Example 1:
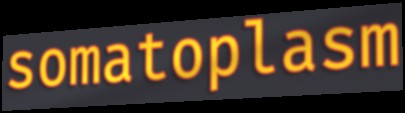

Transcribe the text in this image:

somatoplasm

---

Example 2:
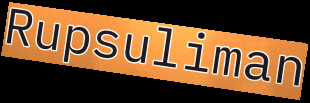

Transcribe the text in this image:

Rupsuliman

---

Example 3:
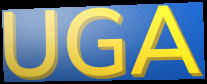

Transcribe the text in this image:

UGA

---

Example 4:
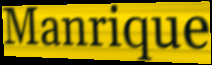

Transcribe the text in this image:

Manrique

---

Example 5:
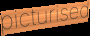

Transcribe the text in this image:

picturised